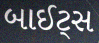
બાઈટ્સ